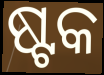
ଷ୍ଟକ